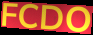
FCDO